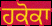
ਹਕੋਕਾ